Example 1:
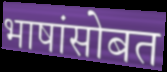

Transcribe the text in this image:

भाषांसोबत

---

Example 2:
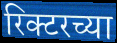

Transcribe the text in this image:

रिक्टरच्या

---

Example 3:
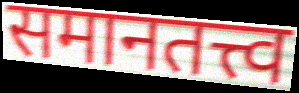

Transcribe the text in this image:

समानतत्त्व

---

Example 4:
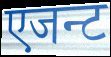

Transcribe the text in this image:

एजन्ट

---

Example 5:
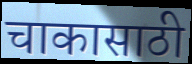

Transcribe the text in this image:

चाकासाठी